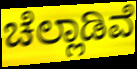
ಚೆಲ್ಲಾಡಿವೆ